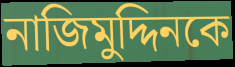
নাজিমুদ্দিনকে